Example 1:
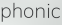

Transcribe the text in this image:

phonic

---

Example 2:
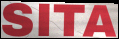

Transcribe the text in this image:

SITA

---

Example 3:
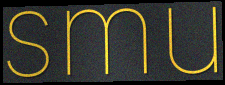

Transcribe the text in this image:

smu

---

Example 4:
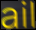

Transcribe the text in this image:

ail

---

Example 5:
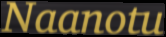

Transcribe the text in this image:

Naanotu